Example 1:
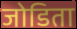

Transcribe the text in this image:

जोडिता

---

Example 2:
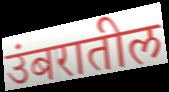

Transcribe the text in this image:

उंबरातील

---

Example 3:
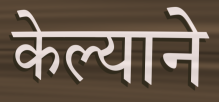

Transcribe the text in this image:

केल्‍याने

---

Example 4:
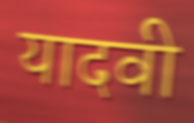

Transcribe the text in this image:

यादवी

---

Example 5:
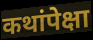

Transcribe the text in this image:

कथांपेक्षा